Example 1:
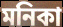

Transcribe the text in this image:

মনিকা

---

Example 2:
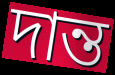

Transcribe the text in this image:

দান্ত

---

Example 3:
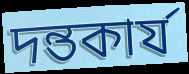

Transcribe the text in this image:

দন্তকার্য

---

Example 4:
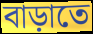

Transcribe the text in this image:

বাড়াতে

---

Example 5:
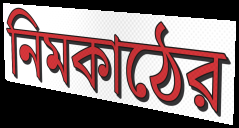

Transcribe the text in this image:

নিমকাঠের